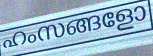
ഹംസങ്ങളോ